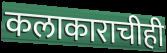
कलाकाराचीही